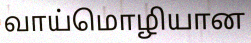
வாய்மொழியான